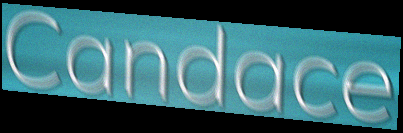
Candace